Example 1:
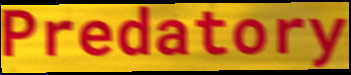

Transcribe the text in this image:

Predatory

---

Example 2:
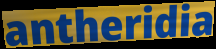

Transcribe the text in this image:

antheridia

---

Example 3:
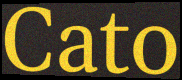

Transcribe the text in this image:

Cato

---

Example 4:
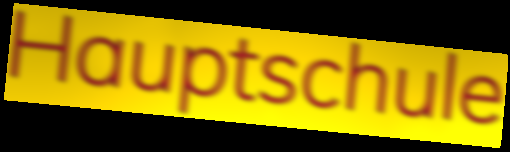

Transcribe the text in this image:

Hauptschule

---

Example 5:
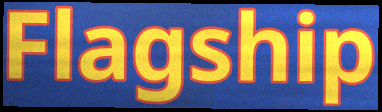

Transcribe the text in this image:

Flagship